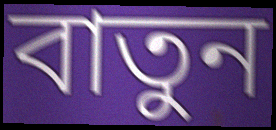
বাতুন